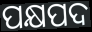
ପକ୍ଷପଦ